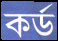
কৰ্ড